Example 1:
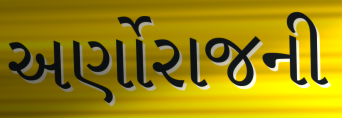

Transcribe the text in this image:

અર્ણોરાજની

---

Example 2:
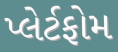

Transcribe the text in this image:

પ્લેર્ટફોમ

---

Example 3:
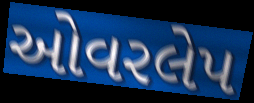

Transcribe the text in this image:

ઓવરલેપ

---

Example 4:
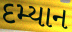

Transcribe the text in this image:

દમ્યાન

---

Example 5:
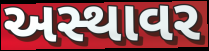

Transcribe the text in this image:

અસ્થાવર